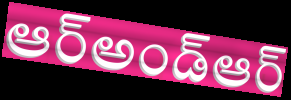
ఆర్అండ్ఆర్